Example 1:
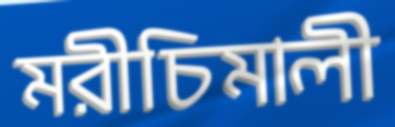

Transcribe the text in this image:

মরীচিমালী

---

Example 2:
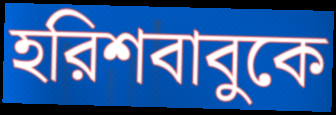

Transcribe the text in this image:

হরিশবাবুকে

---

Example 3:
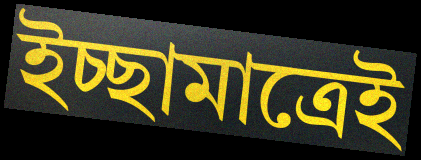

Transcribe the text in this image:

ইচ্ছামাত্রেই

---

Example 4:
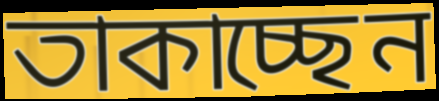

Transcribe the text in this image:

তাকাচ্ছেন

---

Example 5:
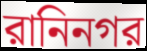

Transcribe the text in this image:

রানিনগর